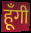
हूँगी